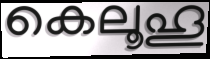
കെലൂഹൂ